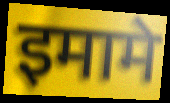
इमामे